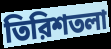
তিরিশতলা